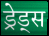
ड्रेड्स